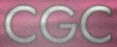
CGC